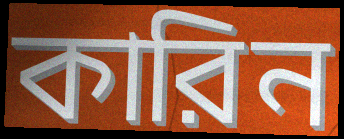
কারিন